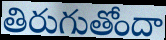
తిరుగుతోందా